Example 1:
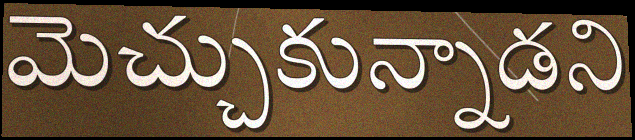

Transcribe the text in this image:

మెచ్చుకున్నాడని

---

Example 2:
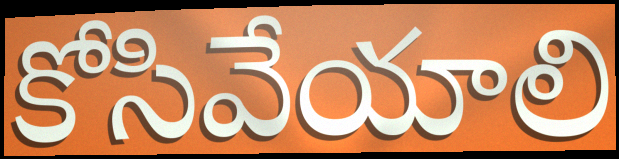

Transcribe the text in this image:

కోసివేయాలి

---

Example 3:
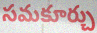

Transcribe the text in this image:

సమకూర్చు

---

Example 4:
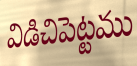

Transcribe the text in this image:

విడిచిపెట్టము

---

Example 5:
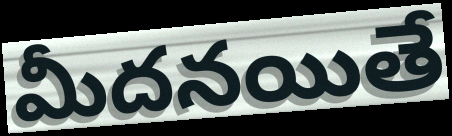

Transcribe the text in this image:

మీదనయితే